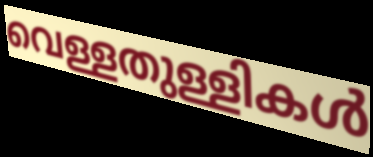
വെള്ളതുള്ളികൾ